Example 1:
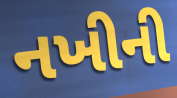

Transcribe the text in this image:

નખીની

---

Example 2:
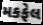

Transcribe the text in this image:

મકફેલ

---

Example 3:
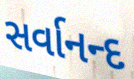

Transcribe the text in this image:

સર્વાનન્દ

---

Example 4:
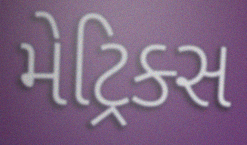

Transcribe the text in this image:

મેટ્રિક્સ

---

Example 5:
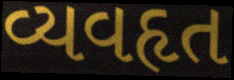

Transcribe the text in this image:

વ્યવહૃત